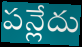
పన్లేదు